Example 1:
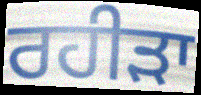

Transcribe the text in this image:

ਰਹੀੜਾ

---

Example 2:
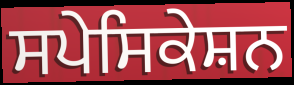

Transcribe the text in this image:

ਸਪੇਸਿਕੇਸ਼ਨ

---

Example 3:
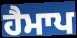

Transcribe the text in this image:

ਹੈਮਾਪ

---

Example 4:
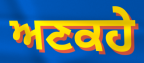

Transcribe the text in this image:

ਅਣਕਹੇ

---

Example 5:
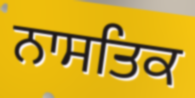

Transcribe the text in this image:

ਨਾਸਤਿਕ